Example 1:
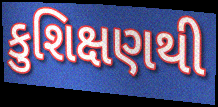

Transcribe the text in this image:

કુશિક્ષણથી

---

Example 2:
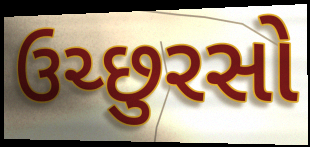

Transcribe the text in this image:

ઉચ્છુરસો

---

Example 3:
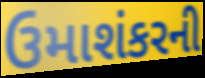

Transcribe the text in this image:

ઉમાશંકરની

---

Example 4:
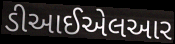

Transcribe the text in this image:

ડીઆઈએલઆર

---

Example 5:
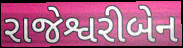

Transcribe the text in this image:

રાજેશ્વરીબેન